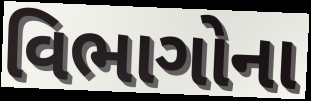
વિભાગોના